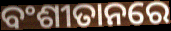
ବଂଶୀତାନରେ